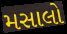
મસાલો